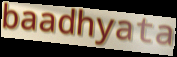
baadhyata